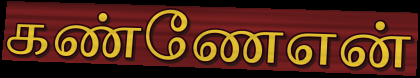
கண்ணேஎன்